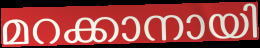
മറക്കാനായി